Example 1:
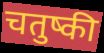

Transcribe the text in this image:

चतुष्की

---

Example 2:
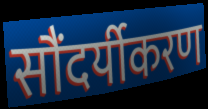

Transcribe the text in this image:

सौंदर्यीकरण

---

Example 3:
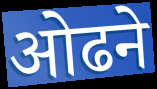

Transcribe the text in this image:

ओढने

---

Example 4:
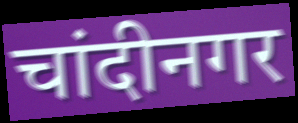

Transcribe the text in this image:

चांदीनगर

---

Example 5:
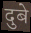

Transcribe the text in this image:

दुबे